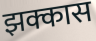
झक्कास